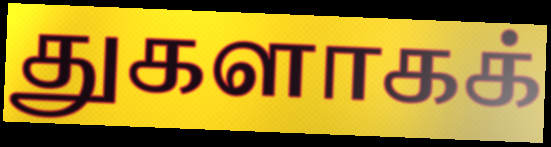
துகளாகக்